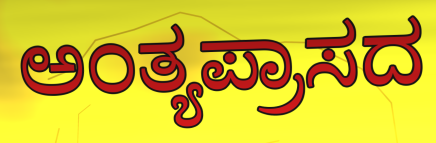
ಅಂತ್ಯಪ್ರಾಸದ